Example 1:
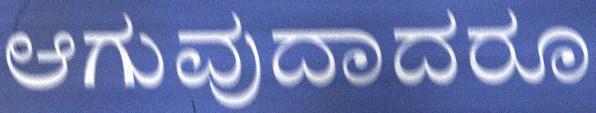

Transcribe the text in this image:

ಆಗುವುದಾದರೂ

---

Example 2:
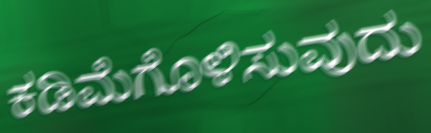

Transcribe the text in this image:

ಕಡಿಮೆಗೊಳಿಸುವುದು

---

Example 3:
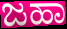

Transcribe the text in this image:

ಜಹಾ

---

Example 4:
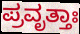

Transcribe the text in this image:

ಪ್ರವೃತ್ತಾಃ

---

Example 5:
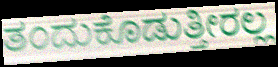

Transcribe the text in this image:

ತಂದುಕೊಡುತ್ತೀರಲ್ಲ